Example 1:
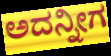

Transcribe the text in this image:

ಅದನ್ನೀಗ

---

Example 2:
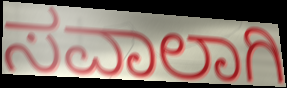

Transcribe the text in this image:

ಸವಾಲಾಗಿ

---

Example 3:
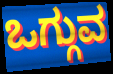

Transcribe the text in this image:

ಒಗ್ಗುವ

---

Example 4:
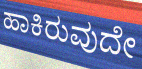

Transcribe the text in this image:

ಹಾಕಿರುವುದೇ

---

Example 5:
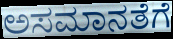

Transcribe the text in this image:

ಅಸಮಾನತೆಗೆ